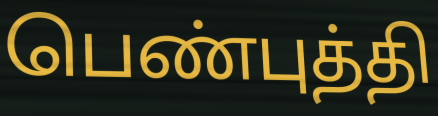
பெண்புத்தி